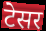
टेसर